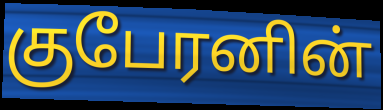
குபேரனின்